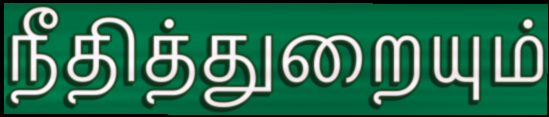
நீதித்துறையும்